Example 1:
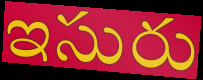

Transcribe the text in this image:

ఇసురు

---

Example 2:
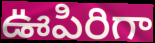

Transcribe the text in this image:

ఊపిరిగా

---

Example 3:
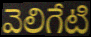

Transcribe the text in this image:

వెలిగేటి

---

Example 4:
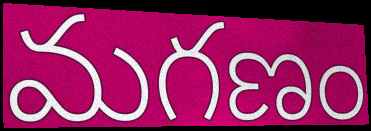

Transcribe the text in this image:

మగణం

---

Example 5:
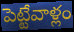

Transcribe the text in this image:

పెట్టేవాళ్లం